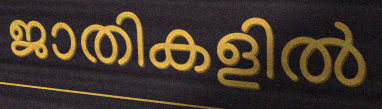
ജാതികളിൽ